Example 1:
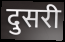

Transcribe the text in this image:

दुसरी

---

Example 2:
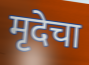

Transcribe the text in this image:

मृदेचा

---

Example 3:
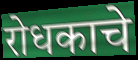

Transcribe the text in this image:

रोधकाचे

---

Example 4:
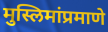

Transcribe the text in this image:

मुस्लिमांप्रमाणे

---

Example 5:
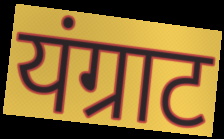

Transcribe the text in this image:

यंग्राट